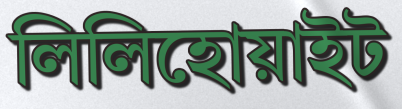
লিলিহোয়াইট